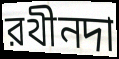
রথীনদা